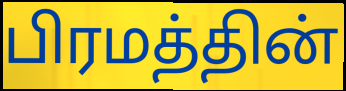
பிரமத்தின்